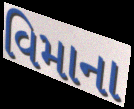
વિમાના